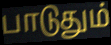
பாடுதும்